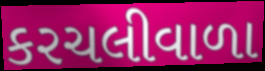
કરચલીવાળા